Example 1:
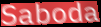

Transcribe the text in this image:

Saboda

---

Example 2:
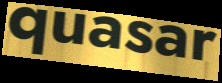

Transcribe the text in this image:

quasar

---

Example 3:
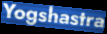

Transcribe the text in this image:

Yogshastra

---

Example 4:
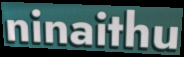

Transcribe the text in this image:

ninaithu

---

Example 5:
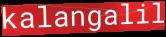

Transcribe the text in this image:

kalangalil